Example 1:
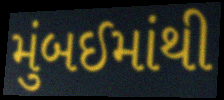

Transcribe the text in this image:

મુંબઈમાંથી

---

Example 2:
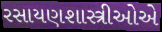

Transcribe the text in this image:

રસાયણશાસ્ત્રીઓએ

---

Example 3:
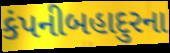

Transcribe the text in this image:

કંપનીબહાદુરના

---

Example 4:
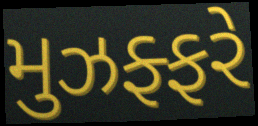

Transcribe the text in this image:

મુઝફ્ફરે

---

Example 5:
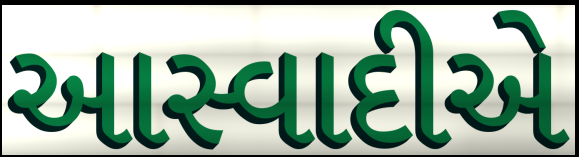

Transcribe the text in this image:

આસ્વાદીએ